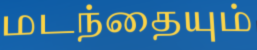
மடந்தையும்